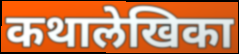
कथालेखिका